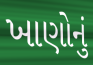
ખાણોનું